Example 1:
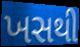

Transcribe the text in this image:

ખસથી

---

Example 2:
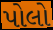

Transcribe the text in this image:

પોલો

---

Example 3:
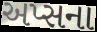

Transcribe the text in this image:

અપ્સના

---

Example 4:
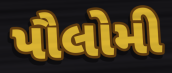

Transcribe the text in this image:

પૌલોમી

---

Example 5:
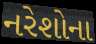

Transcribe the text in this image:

નરેશોના